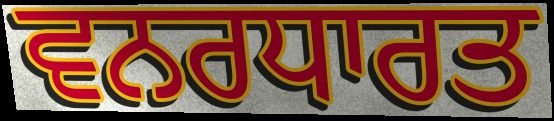
ਵਨਰਧਾਰਤ